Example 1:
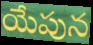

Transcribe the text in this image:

యేపున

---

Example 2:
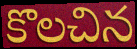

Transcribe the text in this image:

కొలచిన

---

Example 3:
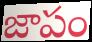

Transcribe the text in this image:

జాపం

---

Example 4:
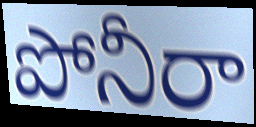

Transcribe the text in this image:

పోనీరా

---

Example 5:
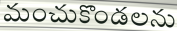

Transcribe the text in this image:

మంచుకొండలను